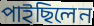
পাইছিলেন